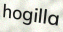
hogilla